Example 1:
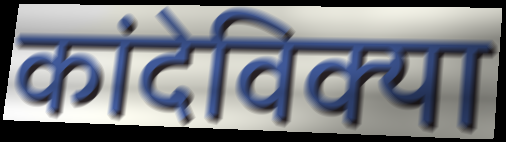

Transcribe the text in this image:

कांदेविक्या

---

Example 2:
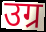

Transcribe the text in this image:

उग्र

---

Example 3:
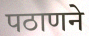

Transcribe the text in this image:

पठाणने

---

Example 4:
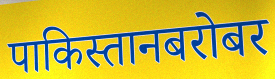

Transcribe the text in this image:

पाकिस्तानबरोबर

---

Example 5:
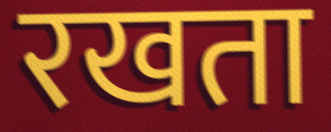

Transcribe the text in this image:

रखता